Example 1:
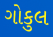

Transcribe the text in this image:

ગોકુલ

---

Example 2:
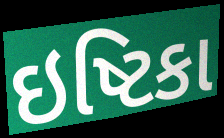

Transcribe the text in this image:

ઇષ્ટિકા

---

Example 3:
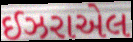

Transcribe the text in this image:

ઈઝરાએલ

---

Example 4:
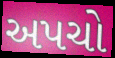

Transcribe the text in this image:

અપચો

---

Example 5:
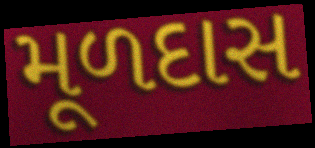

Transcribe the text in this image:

મૂળદાસ